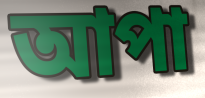
আপা